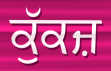
ਕੁੱਕਜ਼